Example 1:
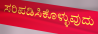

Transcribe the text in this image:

ಸರಿಪಡಿಸಿಕೊಳ್ಳುವುದು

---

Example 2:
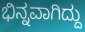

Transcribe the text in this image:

ಭಿನ್ನವಾಗಿದ್ದು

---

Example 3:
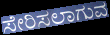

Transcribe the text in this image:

ಸೇರಿಸಲಾಗುವ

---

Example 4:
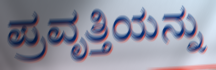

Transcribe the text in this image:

ಪ್ರವೃತ್ತಿಯನ್ನು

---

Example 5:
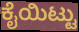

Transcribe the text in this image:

ಕೈಯಿಟ್ಟು